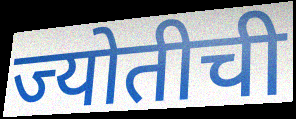
ज्योतीची